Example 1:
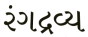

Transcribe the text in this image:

રંગદ્રવ્ય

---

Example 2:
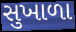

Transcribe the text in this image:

સુખાળા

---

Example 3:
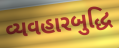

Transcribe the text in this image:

વ્યવહારબુદ્ધિ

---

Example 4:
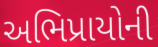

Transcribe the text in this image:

અભિપ્રાયોની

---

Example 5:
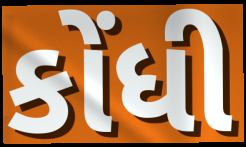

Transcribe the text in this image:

કોંધી